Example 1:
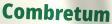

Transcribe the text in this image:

Combretum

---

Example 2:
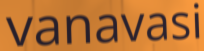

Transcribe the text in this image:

vanavasi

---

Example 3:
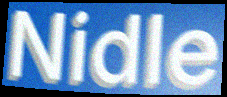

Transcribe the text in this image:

Nidle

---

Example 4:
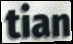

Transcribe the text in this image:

tian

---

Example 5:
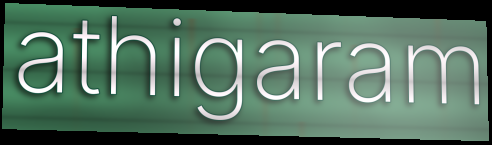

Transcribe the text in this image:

athigaram